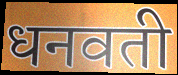
धनवती